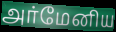
அர்மேனிய